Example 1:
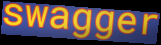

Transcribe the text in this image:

swagger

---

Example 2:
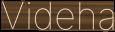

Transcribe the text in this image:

Videha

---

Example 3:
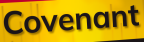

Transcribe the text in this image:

Covenant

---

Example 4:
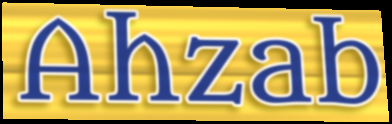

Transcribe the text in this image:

Ahzab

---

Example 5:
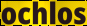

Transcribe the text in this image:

ochlos